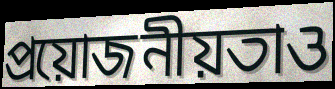
প্ৰয়োজনীয়তাও